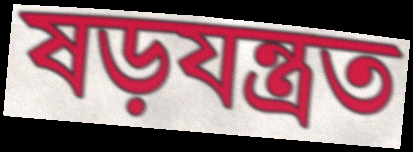
ষড়যন্ত্ৰত